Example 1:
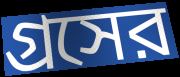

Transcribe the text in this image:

গ্রসের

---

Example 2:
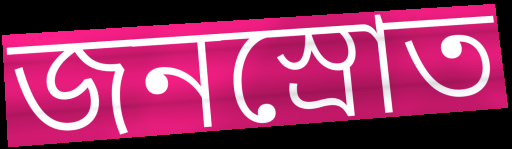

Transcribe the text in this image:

জনস্রোত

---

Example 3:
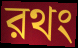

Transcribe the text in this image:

রথং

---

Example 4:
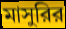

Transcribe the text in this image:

মাসুরির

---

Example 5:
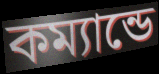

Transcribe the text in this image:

কম্যান্ডে